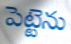
పెట్టెను